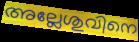
അല്ലേശുവിനെ